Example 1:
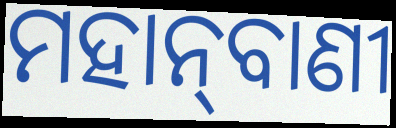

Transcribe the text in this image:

ମହାନ୍‌ବାଣୀ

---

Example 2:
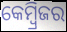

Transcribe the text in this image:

କେମ୍ବ୍ରିଜର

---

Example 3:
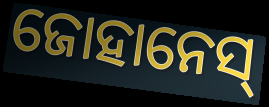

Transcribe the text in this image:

ଜୋହାନେସ୍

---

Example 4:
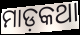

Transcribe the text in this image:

ମାଡ଼କଥା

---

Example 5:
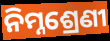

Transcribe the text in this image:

ନିମ୍ନଶ୍ରେଣୀ